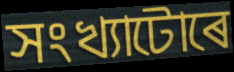
সংখ্যাটোৰে